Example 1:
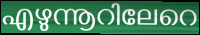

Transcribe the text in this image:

എഴുന്നൂറിലേറെ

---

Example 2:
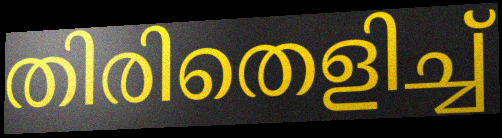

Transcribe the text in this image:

തിരിതെളിച്ച്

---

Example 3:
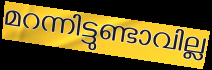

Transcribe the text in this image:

മറന്നിട്ടുണ്ടാവില്ല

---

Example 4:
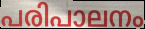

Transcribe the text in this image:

പരിപാലനം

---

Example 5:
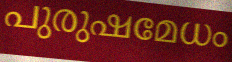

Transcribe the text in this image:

പുരുഷമേധം